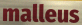
malleus